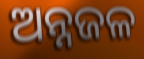
ଅନ୍ନଜଳ